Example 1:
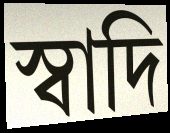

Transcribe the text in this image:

স্বাদি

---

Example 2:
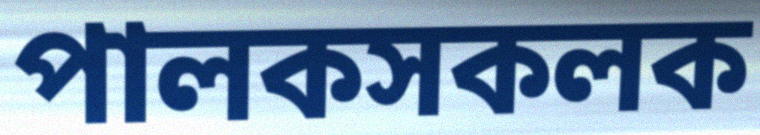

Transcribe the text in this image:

পালকসকলক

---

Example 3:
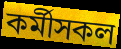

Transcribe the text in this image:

কৰ্মীসকল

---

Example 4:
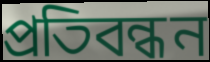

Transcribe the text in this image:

প্ৰতিবন্ধন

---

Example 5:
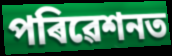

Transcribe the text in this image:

পৰিৱেশনত